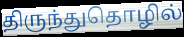
திருந்துதொழில்